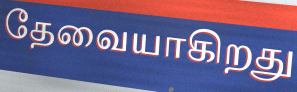
தேவையாகிறது